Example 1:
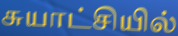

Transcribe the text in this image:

சுயாட்சியில்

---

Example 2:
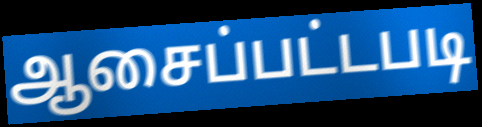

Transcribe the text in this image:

ஆசைப்பட்டபடி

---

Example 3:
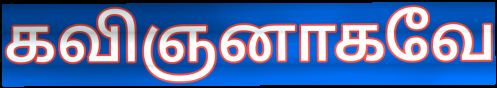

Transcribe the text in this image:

கவிஞனாகவே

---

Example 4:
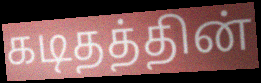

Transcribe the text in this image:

கடிதத்தின்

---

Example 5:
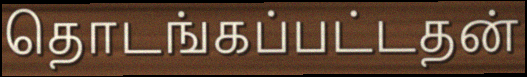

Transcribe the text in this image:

தொடங்கப்பட்டதன்